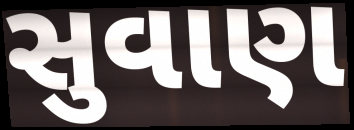
સુવાણ